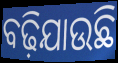
ବଢ଼ିଯାଉଛି